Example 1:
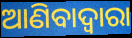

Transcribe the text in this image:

ଆଣିବାଦ୍ୱାରା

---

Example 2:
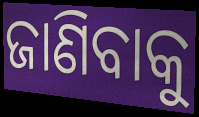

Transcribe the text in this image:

ଜାଣିବାକୁ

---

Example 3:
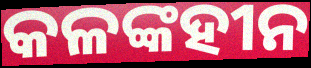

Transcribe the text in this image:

କଳଙ୍କହୀନ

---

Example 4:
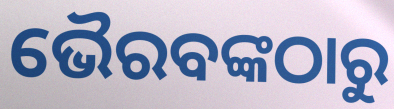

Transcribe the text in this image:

ଭୈରବଙ୍କଠାରୁ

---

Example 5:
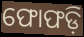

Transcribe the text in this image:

ଫୋଫଡ଼ି